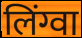
लिंग्वा